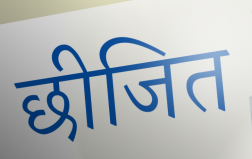
छीजित